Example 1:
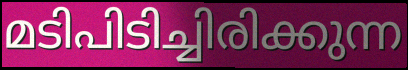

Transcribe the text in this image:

മടിപിടിച്ചിരിക്കുന്ന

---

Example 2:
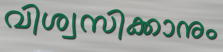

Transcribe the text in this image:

വിശ്വസിക്കാനും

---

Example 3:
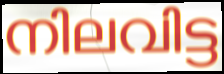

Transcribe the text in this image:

നിലവിട്ട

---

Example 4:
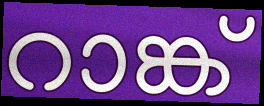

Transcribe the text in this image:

റാങ്ക്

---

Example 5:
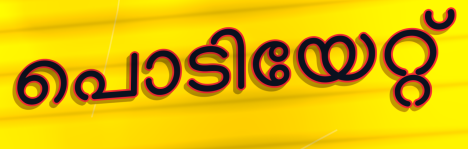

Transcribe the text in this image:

പൊടിയേറ്റ്